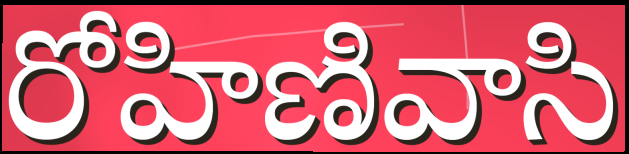
రోహిణివాసి